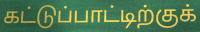
கட்டுப்பாட்டிற்குக்